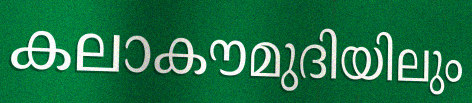
കലാകൗമുദിയിലും